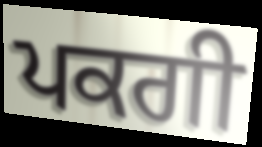
ਪਕਗੀ